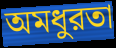
অমধুরতা